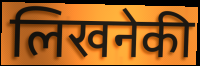
लिखनेकी